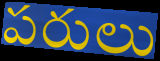
పరులు